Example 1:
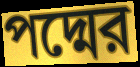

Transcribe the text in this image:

পদ্মের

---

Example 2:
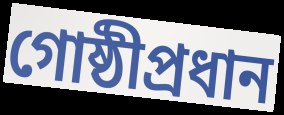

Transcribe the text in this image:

গোষ্ঠীপ্রধান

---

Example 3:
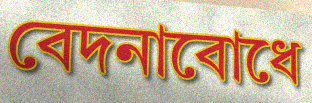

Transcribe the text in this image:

বেদনাবোধে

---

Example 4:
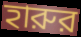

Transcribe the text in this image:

হারুর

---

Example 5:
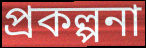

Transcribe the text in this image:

প্রকল্পনা